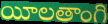
యీలతాంగి